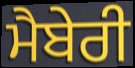
ਮੈਬੇਰੀ